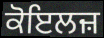
ਕੋਇਲਜ਼